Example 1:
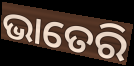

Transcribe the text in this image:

ଭାତେରି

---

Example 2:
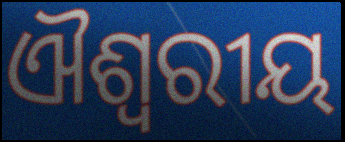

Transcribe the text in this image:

ଐଶ୍ୱରୀୟ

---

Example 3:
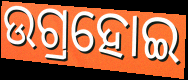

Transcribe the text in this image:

ଉଗ୍ରହୋଇ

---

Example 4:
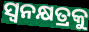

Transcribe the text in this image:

ସ୍ୱନକ୍ଷତ୍ରକୁ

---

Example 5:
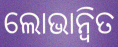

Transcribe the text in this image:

ଲୋଭାନ୍ୱିତ